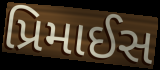
પ્રિમાઈસ